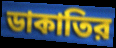
ডাকাতির